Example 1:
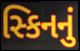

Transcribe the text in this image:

સ્કિનનું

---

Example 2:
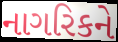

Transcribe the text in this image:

નાગરિકને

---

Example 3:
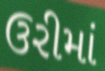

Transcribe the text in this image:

ઉરીમાં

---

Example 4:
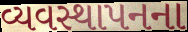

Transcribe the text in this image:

વ્યવસ્થાપનના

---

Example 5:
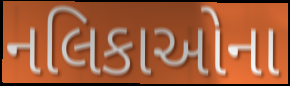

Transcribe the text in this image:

નલિકાઓના